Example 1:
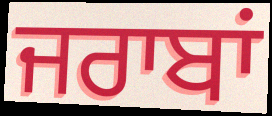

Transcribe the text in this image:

ਜਰਾਬਾਂ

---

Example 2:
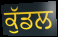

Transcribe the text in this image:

ਕੁੱਡਲ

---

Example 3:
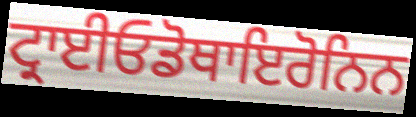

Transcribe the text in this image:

ਟ੍ਰਾਈਓਡੋਥਾਇਰੋਨਿਨ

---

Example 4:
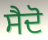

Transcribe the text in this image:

ਸੈਦੋ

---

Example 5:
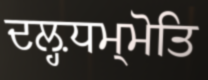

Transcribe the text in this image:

ਦਲ਼੍ਹਧਮ੍ਮੋਤਿ